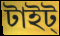
টাইট্